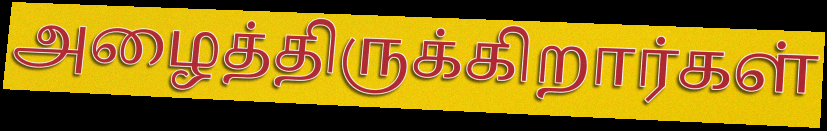
அழைத்திருக்கிறார்கள்